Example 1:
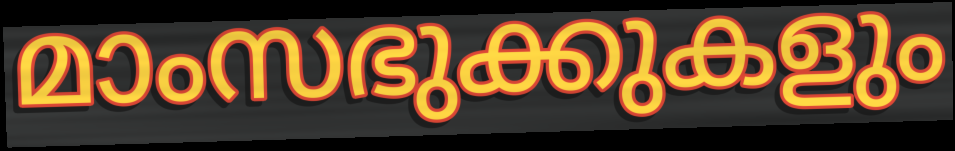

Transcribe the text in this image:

മാംസഭുക്കുകളും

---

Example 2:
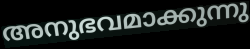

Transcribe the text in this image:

അനുഭവമാക്കുന്നു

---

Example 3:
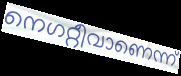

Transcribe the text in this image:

നെഗറ്റീവാണെന്ന്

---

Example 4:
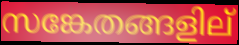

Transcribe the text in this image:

സങ്കേതങ്ങളില്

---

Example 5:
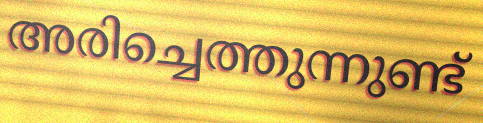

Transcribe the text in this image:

അരിച്ചെത്തുന്നുണ്ട്